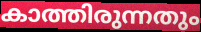
കാത്തിരുന്നതും